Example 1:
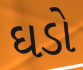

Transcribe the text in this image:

ઘડો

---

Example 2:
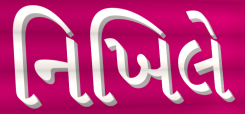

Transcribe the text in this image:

નિખિલે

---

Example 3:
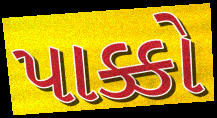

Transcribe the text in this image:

પાક્કો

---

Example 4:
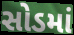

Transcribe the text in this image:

સોડમાં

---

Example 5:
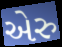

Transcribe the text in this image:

એરુ